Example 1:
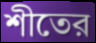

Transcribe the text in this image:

শীতের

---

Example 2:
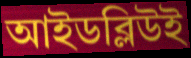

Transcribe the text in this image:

আইডব্লিউই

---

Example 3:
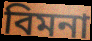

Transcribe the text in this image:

বিমনা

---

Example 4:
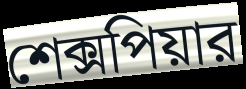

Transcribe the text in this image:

শেক্সপিয়ার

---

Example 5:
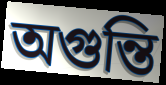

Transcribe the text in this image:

অগুন্তি